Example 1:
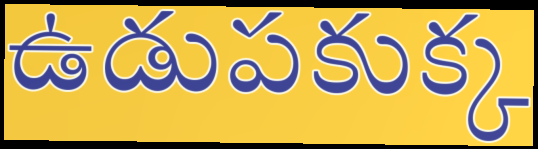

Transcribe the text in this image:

ఉడుపకుక్క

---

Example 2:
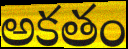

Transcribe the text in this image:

అకతం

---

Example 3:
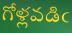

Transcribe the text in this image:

గోళ్లవడిఁ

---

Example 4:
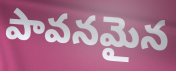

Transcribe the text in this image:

పావనమైన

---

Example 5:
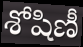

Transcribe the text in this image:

శోషిణీ